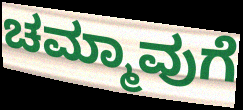
ಚಮ್ಮಾವುಗೆ